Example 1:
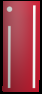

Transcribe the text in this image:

il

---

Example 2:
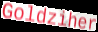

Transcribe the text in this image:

Goldziher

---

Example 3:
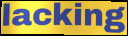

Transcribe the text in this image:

lacking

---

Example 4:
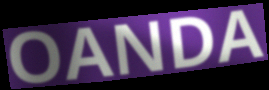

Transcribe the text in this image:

OANDA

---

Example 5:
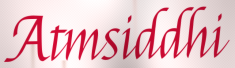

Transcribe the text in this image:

Atmsiddhi